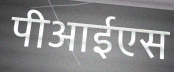
पीआईएस